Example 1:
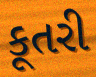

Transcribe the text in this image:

કૂતરી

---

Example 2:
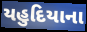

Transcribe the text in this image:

યહુદિયાના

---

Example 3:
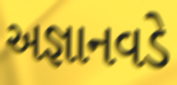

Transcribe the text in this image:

અજ્ઞાનવડે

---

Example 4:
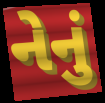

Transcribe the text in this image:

નેનું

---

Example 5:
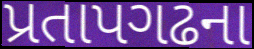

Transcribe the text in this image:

પ્રતાપગઢના